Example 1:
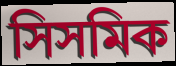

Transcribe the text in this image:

সিসমিক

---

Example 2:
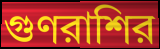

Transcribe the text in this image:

গুণরাশির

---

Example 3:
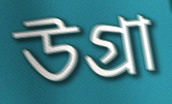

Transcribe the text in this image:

উগ্রা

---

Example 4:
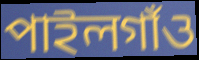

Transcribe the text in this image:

পাইলগাঁও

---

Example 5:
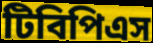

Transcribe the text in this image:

টিবিপিএস